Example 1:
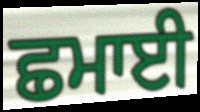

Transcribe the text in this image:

ਛਮਾਈ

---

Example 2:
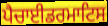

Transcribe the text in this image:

ਪੈਚਾਈਡਰਮਾਟਿਸ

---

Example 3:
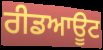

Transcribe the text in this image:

ਰੀਡਆਊਟ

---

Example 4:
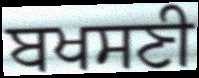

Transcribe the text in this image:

ਬਖਸਣੀ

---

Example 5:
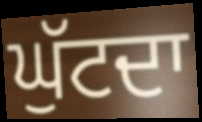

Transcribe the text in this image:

ਘੁੱਟਦਾ